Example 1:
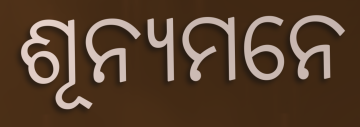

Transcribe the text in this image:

ଶୂନ୍ୟମନେ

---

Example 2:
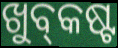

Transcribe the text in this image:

ଖୁବ୍‌କଷ୍ଟ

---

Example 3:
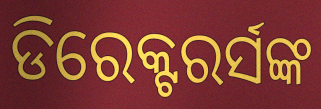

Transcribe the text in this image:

ଡିରେକ୍ଟରର୍ସଙ୍କ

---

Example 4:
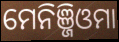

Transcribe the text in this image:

ମେନିଞ୍ଜିଓମା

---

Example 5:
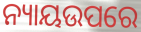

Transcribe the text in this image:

ନ୍ୟାୟଉପରେ